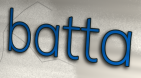
batta